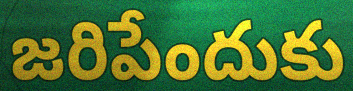
జరిపేందుకు